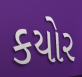
કયોર